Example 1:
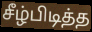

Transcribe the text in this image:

சீழ்பிடித்த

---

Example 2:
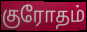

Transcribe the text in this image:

குரோதம்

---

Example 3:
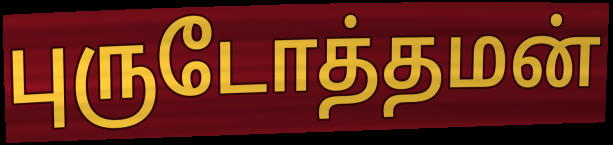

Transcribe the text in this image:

புருடோத்தமன்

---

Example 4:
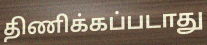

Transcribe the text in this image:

திணிக்கப்படாது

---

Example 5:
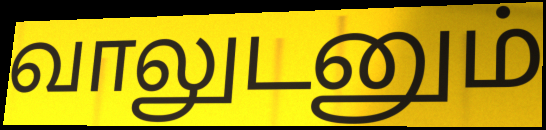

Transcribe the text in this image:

வாலுடனும்